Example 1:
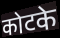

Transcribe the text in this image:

कोटके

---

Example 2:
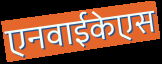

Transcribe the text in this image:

एनवाईकेएस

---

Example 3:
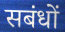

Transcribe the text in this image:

सबंधों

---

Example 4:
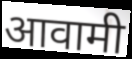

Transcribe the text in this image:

आवामी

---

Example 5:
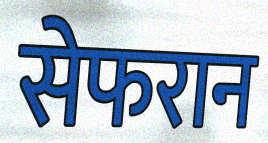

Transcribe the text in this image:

सेफरान